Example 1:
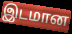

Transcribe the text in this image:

இடமான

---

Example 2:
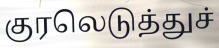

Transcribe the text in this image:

குரலெடுத்துச்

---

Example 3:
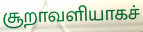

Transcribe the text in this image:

சூறாவளியாகச்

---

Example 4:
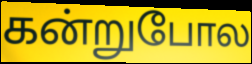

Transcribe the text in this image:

கன்றுபோல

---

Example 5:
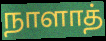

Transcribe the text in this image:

நாளாத்